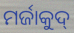
ମର୍ଜାକୁଦ୍